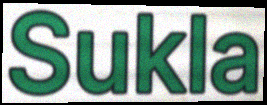
Sukla